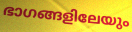
ഭാഗങ്ങളിലേയും